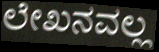
ಲೇಖನವಲ್ಲ